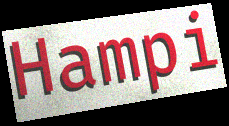
Hampi